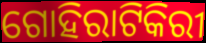
ଗୋହିରାଟିକିରୀ